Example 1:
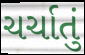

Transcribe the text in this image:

ચર્ચાતું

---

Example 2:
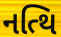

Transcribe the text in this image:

નત્થિ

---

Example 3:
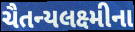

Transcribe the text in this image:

ચૈતન્યલક્ષ્મીના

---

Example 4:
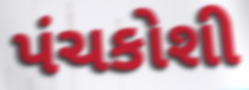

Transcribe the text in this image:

પંચકોશી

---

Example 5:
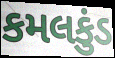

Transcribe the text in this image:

કમલકુંડ